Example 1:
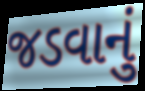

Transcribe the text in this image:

જડવાનું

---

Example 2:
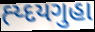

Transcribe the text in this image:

હ્ય્દયગુહા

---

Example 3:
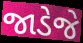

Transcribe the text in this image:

જાડેજે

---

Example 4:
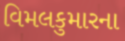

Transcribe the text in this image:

વિમલકુમારના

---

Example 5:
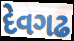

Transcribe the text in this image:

દેવગઢ